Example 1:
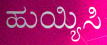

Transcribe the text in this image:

ಹುಯ್ಯಿಸಿ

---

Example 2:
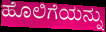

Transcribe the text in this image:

ಹೊಲಿಗೆಯನ್ನು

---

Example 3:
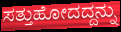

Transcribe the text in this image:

ಸತ್ತುಹೋದದ್ದನ್ನು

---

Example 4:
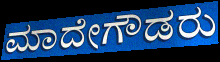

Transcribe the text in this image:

ಮಾದೇಗೌಡರು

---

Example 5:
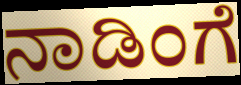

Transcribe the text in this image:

ನಾಡಿಂಗೆ